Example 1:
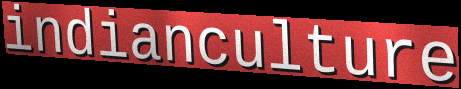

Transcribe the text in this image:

indianculture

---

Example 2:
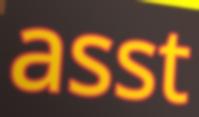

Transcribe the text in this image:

asst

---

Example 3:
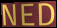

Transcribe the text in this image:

NED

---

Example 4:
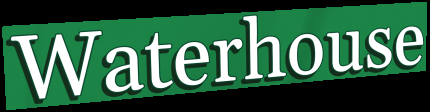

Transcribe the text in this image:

Waterhouse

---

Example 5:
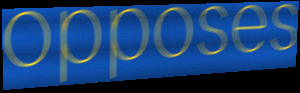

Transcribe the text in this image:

opposes